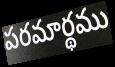
పరమార్థము